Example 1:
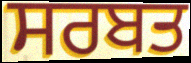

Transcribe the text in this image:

ਸਰਬਤ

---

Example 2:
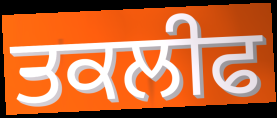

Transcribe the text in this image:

ਤਕਲੀਫ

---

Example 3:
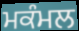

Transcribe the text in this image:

ਮਕੰਮਲ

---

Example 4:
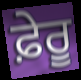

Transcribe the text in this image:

ਫ਼ੇਰੂ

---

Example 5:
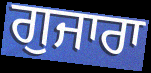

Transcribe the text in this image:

ਗੁਜਾਰਾ